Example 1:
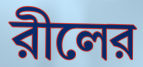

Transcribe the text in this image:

রীলের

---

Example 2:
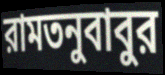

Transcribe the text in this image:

রামতনুবাবুর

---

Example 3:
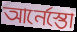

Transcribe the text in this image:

আর্নেস্তো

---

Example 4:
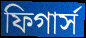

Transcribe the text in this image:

ফিগার্স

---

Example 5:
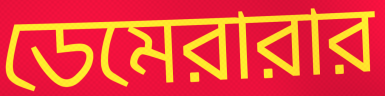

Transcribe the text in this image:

ডেমেরারার